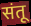
संतू